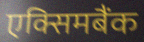
एक्सिमबैंक